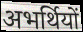
अभर्थियों